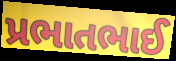
પ્રભાતભાઈ